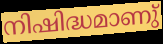
നിഷിദ്ധമാണു്